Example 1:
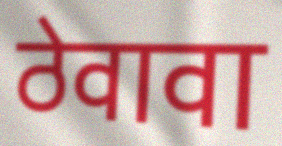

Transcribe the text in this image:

ठेवावा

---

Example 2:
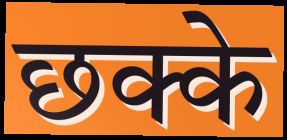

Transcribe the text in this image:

छक्के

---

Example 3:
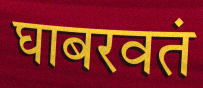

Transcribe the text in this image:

घाबरवतं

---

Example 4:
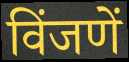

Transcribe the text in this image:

विंजणें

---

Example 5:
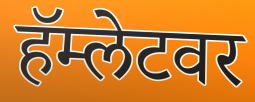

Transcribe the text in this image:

हॅम्लेटवर